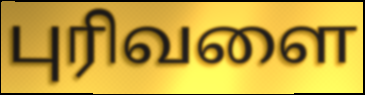
புரிவளை